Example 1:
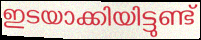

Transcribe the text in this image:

ഇടയാക്കിയിട്ടുണ്ട്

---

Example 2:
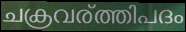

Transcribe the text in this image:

ചക്രവര്ത്തിപദം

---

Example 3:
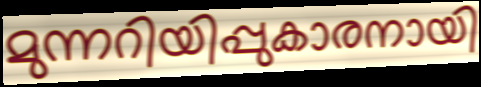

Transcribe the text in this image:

മുന്നറിയിപ്പുകാരനായി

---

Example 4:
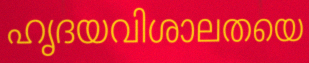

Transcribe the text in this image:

ഹൃദയവിശാലതയെ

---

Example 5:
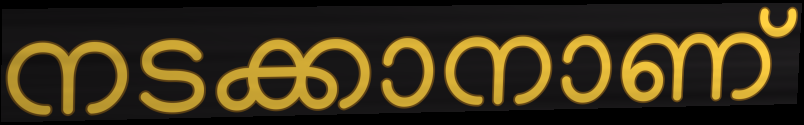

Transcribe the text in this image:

നടക്കാനാണ്